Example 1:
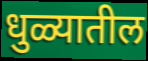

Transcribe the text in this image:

धुळ्यातील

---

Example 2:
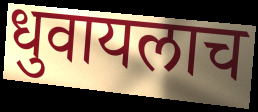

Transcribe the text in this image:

धुवायलाच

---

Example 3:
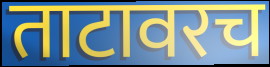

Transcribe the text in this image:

ताटावरच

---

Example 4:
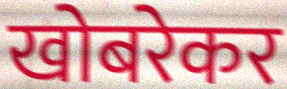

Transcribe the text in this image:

खोबरेकर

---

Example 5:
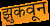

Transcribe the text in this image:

झुकवून